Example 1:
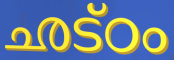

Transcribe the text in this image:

ഛട്ഠം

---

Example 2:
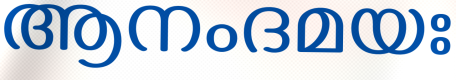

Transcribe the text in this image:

ആനംദമയഃ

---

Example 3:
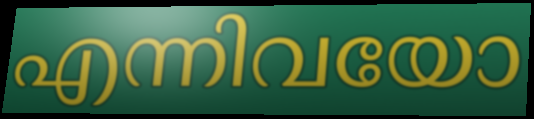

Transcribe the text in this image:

എന്നിവയോ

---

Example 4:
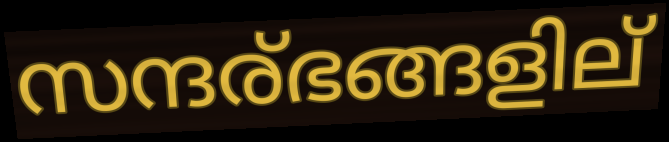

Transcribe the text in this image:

സന്ദര്ഭങ്ങളില്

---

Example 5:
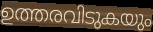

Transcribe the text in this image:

ഉത്തരവിടുകയും